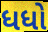
ધધો